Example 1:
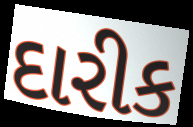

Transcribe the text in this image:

દારીક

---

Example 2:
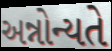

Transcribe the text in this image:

અન્નોન્યતે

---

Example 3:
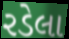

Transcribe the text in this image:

રડેલા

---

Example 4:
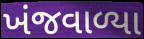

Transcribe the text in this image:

ખંજવાળ્યા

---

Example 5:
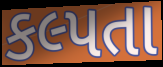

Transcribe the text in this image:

કલ્પતા